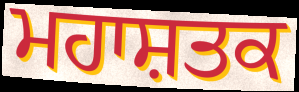
ਮਹਾਸ਼ਤਕ